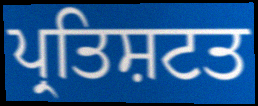
ਪ੍ਰਤਿਸ਼ਟਤ